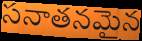
సనాతనమైన